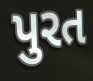
પુરત